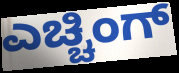
ಎಚ್ಚಿಂಗ್